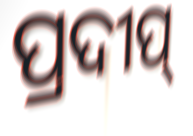
ପ୍ରଦୀପ୍